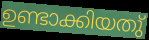
ഉണ്ടാക്കിയതു്